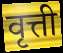
वृत्ती